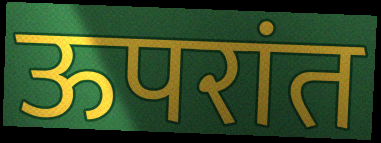
ऊपरांत